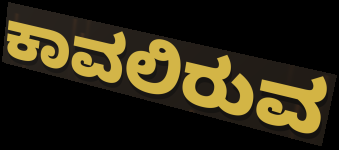
ಕಾವಲಿರುವ